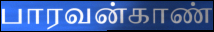
பாரவன்காண்